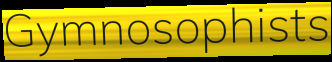
Gymnosophists